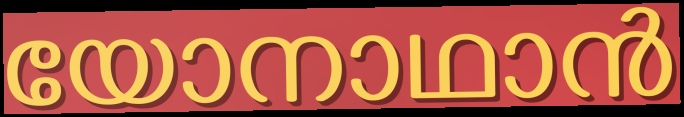
യോനാഥാൻ